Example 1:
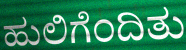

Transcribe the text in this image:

ಹುಲಿಗೆಂದಿತು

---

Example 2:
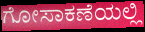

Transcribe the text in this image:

ಗೋಸಾಕಣೆಯಲ್ಲಿ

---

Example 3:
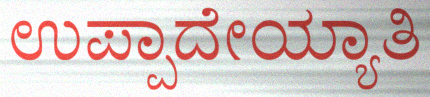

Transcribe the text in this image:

ಉಪ್ಪಾದೇಯ್ಯಾತಿ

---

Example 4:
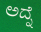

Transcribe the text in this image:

ಅದ್ನೆ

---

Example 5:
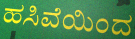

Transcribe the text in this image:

ಹಸಿವೆಯಿಂದ